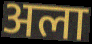
अला